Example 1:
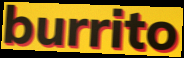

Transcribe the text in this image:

burrito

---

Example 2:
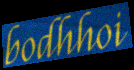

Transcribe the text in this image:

bodhhoi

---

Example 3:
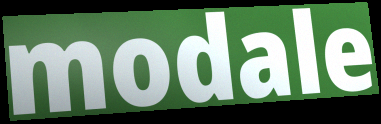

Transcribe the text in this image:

modale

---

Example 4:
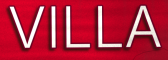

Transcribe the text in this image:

VILLA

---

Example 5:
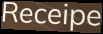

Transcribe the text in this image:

Receipe